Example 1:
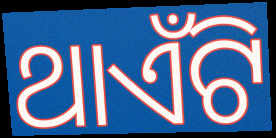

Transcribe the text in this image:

ଥାଏଁଟି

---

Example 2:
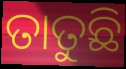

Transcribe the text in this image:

ତାତୁଛି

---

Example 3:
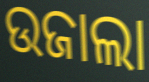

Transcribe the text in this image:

ଉଜାଲା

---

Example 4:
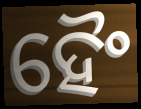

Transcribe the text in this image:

ହୈଂ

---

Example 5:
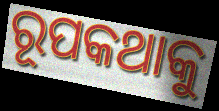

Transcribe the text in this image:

ରୂପକଥାକୁ